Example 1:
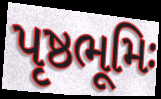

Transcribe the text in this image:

પૃષ્ઠભૂમિઃ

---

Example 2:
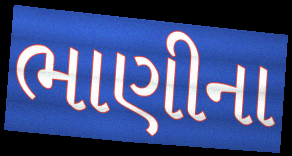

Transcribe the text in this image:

ભાણીના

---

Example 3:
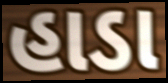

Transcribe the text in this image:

હાડા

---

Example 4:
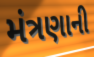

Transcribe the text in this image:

મંત્રણાની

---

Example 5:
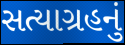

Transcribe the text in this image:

સત્યાગ્રહનું